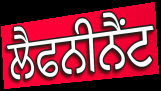
ਲੈਫਨੀਨੈਂਟ